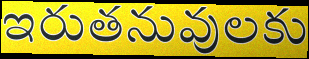
ఇరుతనువులకు